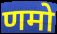
णमो